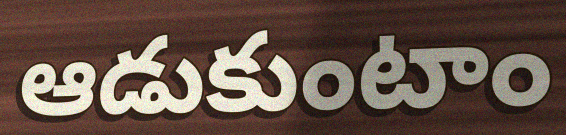
ఆడుకుంటాం